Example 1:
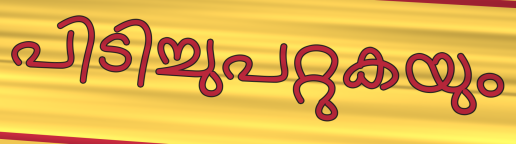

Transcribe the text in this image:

പിടിച്ചുപറ്റുകയും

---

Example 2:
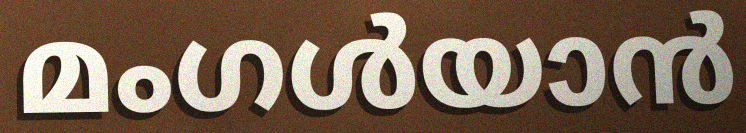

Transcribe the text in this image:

മംഗൾയാൻ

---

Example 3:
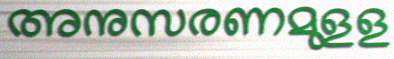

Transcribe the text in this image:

അനുസരണമുളള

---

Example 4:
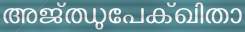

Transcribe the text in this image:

അജ്ഝുപേക്ഖിതാ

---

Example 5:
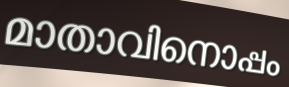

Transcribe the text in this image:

മാതാവിനൊപ്പം